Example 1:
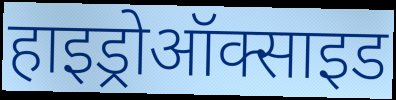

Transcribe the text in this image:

हाइड्रोऑक्साइड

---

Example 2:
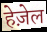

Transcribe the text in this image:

हेज़ेल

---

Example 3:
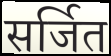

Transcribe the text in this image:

सर्जित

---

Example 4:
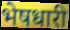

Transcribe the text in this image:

भेषधारी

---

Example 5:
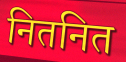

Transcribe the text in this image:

नितनित